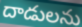
దాడులను